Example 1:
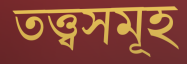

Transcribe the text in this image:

তত্ত্বসমূহ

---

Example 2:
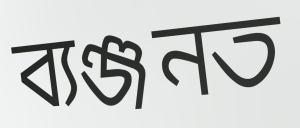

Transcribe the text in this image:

ব্যঞ্জনত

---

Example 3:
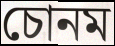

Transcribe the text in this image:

চোনম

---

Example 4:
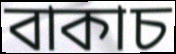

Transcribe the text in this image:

বাকাচ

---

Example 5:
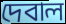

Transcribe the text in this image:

দেবাল